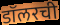
डॉलरची